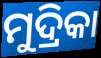
ମୁଦ୍ରିକା